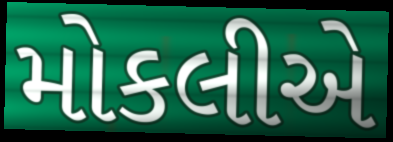
મોકલીએ